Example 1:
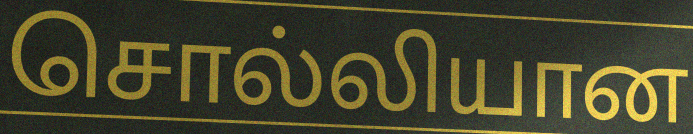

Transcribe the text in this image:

சொல்லியான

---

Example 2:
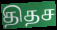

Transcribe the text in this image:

திதச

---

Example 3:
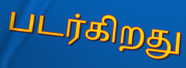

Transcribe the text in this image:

படர்கிறது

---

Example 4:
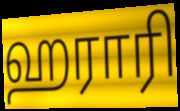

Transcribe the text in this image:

ஹராரி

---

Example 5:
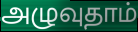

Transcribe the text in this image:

அழுவுதாம்